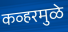
कव्हरमुळे